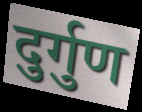
दुर्गुण